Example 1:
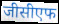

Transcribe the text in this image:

जीसीएफ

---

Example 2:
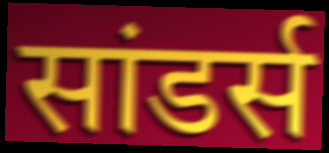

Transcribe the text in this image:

सांडर्स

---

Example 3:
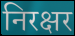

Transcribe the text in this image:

निरक्षर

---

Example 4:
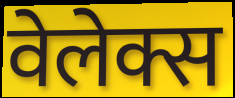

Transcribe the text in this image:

वेलेक्स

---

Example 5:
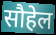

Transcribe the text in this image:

सौहेल